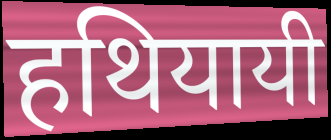
हथियायी